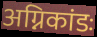
अग्निकांडः